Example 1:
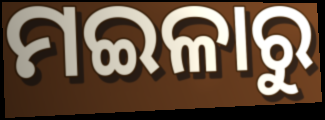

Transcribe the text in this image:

ମଇଳାରୁ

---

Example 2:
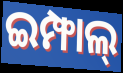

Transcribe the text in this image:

ଇମ୍ଫାଲ୍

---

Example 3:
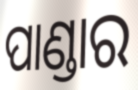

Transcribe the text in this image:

ପାଣ୍ଡାର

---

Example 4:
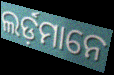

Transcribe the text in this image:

ଲର୍ଡ଼ମାନେ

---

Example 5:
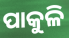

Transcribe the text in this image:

ପାକୁଳି